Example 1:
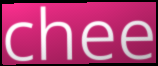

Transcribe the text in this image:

chee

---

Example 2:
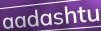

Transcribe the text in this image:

aadashtu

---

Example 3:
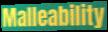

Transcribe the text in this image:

Malleability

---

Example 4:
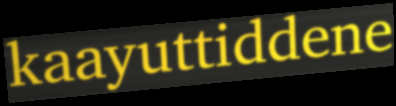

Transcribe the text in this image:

kaayuttiddene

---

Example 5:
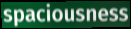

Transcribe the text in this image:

spaciousness